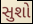
સુશો